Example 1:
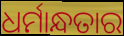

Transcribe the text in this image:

ଧର୍ମାନ୍ଧତାର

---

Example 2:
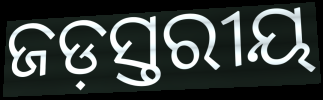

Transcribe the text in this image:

ଜଡ଼ସ୍ତରୀୟ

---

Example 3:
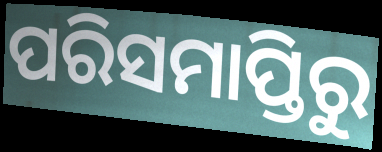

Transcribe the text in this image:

ପରିସମାପ୍ତିରୁ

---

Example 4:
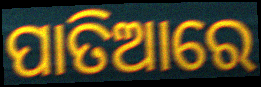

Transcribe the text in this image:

ପାତିଆରେ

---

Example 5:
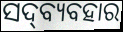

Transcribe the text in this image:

ସଦ୍‍ବ୍ୟବହାର